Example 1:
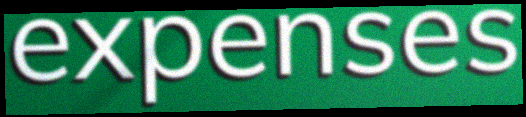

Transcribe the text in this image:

expenses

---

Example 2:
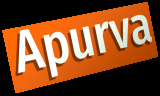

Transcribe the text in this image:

Apurva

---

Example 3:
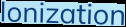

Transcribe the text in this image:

Ionization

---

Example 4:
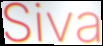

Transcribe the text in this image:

Siva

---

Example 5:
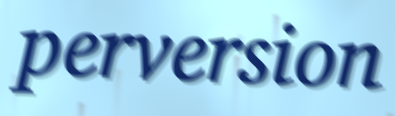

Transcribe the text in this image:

perversion